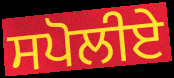
ਸਪੋਲੀਏ